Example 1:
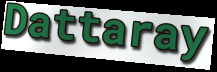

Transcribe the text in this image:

Dattaray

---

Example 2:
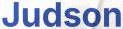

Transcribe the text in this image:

Judson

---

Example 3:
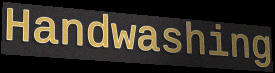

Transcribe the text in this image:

Handwashing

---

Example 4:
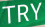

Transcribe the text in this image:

TRY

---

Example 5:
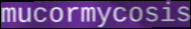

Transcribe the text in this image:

mucormycosis